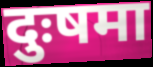
दुःषमा